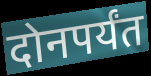
दोनपर्यंत